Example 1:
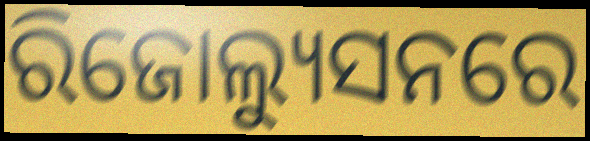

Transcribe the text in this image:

ରିଜୋଲ୍ୟୁସନରେ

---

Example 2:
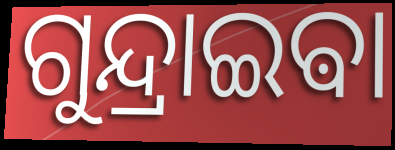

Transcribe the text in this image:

ଗୁନ୍ଦ୍ରାଇଵା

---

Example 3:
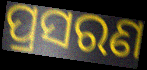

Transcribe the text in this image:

ପ୍ରସରଣ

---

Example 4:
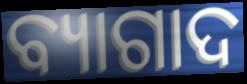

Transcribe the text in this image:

ବ୍ୟାଗାଦ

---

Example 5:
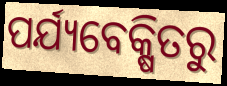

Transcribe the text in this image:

ପର୍ଯ୍ୟବେକ୍ଷିତରୁ